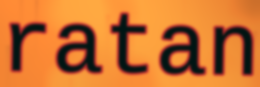
ratan